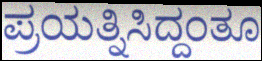
ಪ್ರಯತ್ನಿಸಿದ್ದಂತೂ